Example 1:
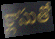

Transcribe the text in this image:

క్లాసుతో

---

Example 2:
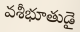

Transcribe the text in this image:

వశీభూతుడై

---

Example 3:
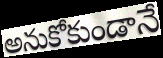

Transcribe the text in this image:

అనుకోకుండానే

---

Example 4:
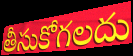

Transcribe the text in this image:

తీసుకోగలదు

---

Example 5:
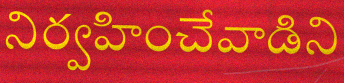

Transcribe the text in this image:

నిర్వహించేవాడిని